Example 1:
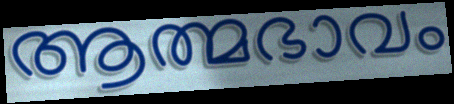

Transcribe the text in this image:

ആത്മഭാവം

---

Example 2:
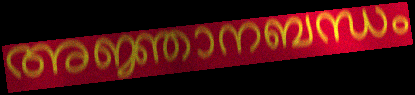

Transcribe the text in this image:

അജ്ഞാനബന്ധം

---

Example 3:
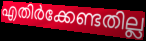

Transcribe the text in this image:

എതിർക്കേണ്ടതില്ല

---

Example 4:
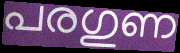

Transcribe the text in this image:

പരഗുണ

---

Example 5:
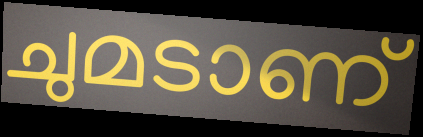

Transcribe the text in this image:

ചുമടാണ്